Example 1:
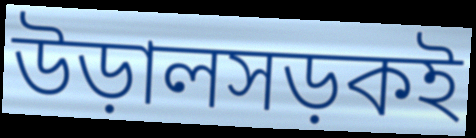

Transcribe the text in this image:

উড়ালসড়কই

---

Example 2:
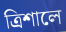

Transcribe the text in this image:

ত্রিশালে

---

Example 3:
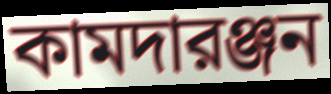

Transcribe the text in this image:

কামদারঞ্জন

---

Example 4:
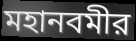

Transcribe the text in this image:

মহানবমীর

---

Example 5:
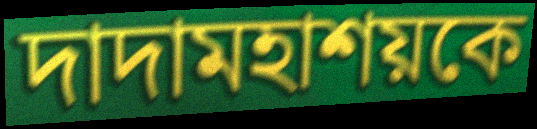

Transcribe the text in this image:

দাদামহাশয়কে